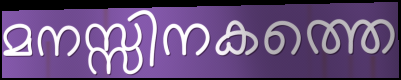
മനസ്സിനകത്തെ